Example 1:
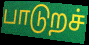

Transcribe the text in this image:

பாடுறச்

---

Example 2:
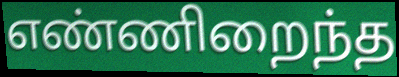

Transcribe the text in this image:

எண்ணிறைந்த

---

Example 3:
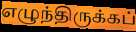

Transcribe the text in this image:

எழுந்திருக்கப்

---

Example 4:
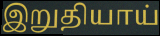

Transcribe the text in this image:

இறுதியாய்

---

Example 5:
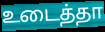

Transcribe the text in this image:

உடைத்தா